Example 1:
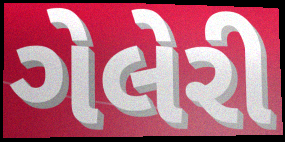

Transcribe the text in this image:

ગેલેરી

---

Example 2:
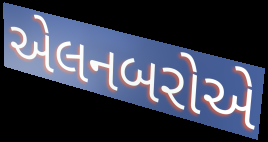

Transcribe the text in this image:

એલનબરોએ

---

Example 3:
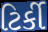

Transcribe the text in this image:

ટિર્કી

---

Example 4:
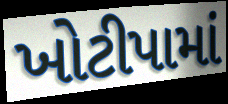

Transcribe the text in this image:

ખોટીપામાં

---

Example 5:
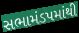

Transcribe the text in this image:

સભામંડપમાંથી